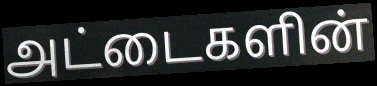
அட்டைகளின்